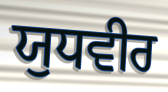
ਯੁਧਵੀਰ